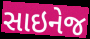
સાઇનેજ